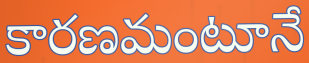
కారణమంటూనే